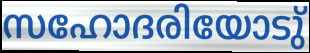
സഹോദരിയോടു്